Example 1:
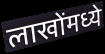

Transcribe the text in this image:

लाखोंमध्ये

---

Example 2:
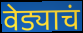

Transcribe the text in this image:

वेड्याचं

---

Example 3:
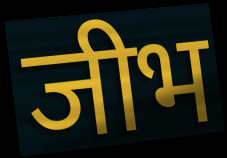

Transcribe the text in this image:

जीभ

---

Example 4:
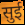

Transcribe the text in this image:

सुई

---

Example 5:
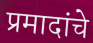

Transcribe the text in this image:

प्रमादांचे